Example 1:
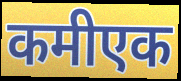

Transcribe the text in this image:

कमीएक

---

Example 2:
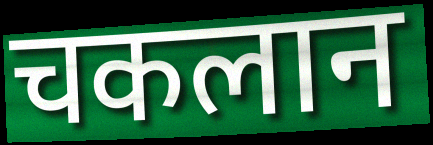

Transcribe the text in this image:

चकलान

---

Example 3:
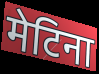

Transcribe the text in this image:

मेटिना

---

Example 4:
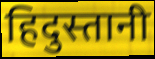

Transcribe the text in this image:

हिदुस्तानी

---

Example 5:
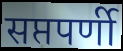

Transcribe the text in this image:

सप्तपर्णी